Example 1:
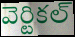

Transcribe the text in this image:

వెర్టికల్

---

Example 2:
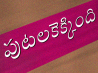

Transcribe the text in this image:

పుటలకెక్కింది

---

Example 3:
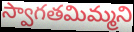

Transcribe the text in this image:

స్వాగతమిమ్మని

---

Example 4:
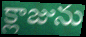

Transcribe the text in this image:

క్లాజును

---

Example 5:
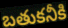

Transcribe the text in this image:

బతుకనీకి